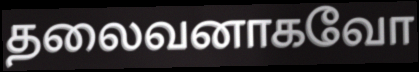
தலைவனாகவோ